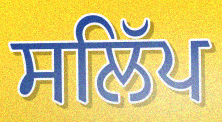
ਸਲਿੱਪ